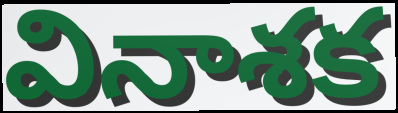
వినాశక